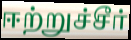
ஈற்றுச்சீர்